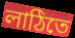
লাঠিতে